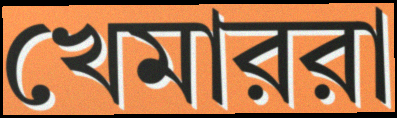
খেমাররা